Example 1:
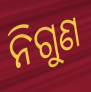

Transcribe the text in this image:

ନିଗୁଣ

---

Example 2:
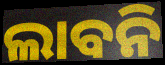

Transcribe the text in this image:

ଲାବନି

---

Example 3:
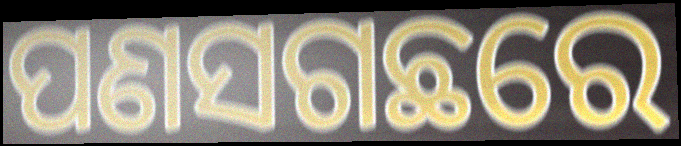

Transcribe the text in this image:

ପଣସଗଛରେ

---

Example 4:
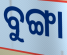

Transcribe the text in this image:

ବୁଙ୍ଗା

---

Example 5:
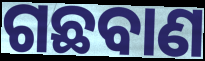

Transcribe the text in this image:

ଗଛବାଣ